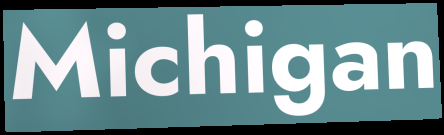
Michigan